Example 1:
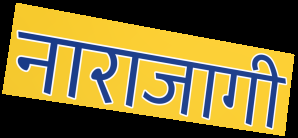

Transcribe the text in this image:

नाराजागी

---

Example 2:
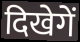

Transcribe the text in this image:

दिखेगें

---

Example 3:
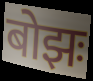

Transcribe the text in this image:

बोझः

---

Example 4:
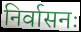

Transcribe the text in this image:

निर्वासनः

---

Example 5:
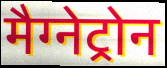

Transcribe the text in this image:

मैग्नेट्रोन